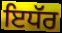
ਇਧੱਰ